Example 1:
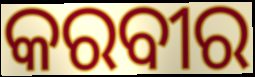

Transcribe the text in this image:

କରବୀର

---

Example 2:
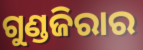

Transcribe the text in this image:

ଗୁଣ୍ଡଜିରାର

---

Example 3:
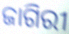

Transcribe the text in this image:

ଜାଗିରୀ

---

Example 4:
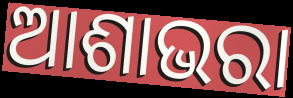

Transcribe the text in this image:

ଆଶାଭରା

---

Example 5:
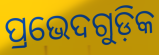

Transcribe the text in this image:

ପ୍ରଭେଦଗୁଡ଼ିକ